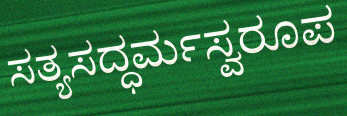
ಸತ್ಯಸದ್ಧರ್ಮಸ್ವರೂಪ